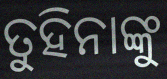
ତୁହିନାଙ୍କୁ